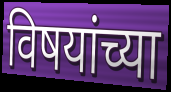
विषयांच्या